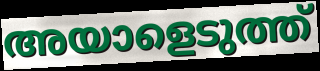
അയാളെടുത്ത്